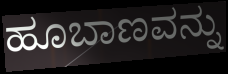
ಹೂಬಾಣವನ್ನು